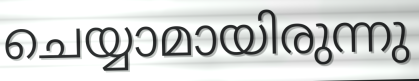
ചെയ്യാമായിരുന്നു